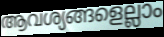
ആവശ്യങ്ങളെല്ലാം